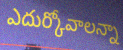
ఎదుర్కోవాలన్నా